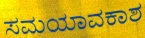
ಸಮಯಾವಕಾಶ